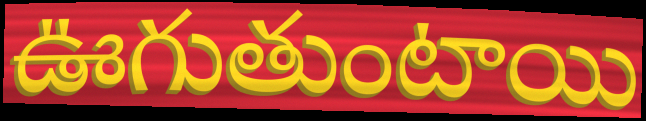
ఊగుతుంటాయి